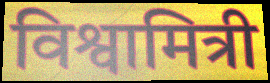
विश्वामित्री